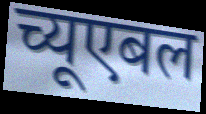
च्यूएबल